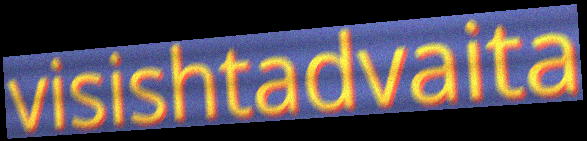
visishtadvaita